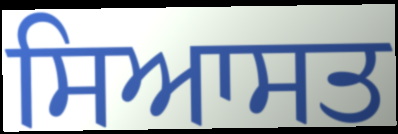
ਸਿਆਸਤ